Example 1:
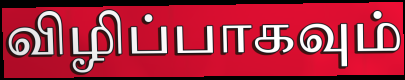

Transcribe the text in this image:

விழிப்பாகவும்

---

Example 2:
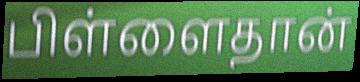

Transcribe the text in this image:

பிள்ளைதான்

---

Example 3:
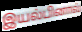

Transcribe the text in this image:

இயல்பினால்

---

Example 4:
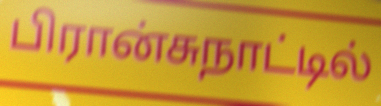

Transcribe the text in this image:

பிரான்சுநாட்டில்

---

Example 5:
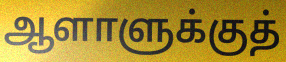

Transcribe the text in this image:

ஆளாளுக்குத்